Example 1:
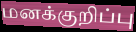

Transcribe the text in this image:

மனக்குறிப்பு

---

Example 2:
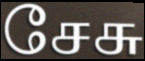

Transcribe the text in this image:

சேசு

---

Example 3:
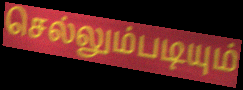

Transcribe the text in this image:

செல்லும்படியும்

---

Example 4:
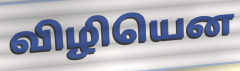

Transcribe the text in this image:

விழியென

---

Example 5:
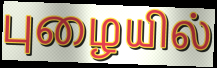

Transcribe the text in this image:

புழையில்